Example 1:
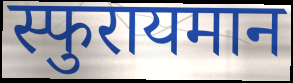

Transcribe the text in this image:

स्फुरायमान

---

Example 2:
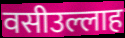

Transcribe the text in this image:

वसीउल्लाह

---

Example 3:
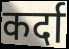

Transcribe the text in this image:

कर्दा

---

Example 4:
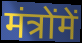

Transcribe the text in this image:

मंत्रोंमें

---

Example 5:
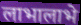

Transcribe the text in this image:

लाभालाभे